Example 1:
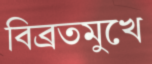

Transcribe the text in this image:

বিব্রতমুখে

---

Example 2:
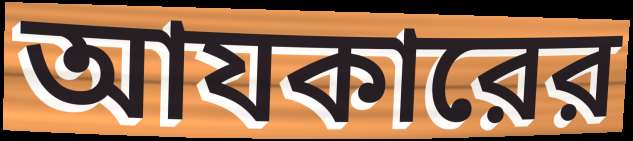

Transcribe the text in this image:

আযকারের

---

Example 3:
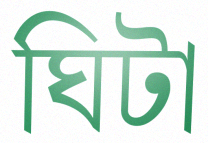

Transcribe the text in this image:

ঘিটা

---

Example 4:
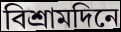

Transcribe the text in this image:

বিশ্রামদিনে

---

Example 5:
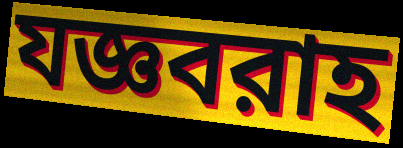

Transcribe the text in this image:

যজ্ঞবরাহ